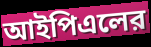
আইপিএলের